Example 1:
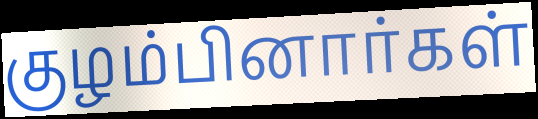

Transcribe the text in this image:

குழம்பினார்கள்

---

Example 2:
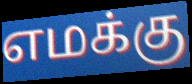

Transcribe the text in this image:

எமக்கு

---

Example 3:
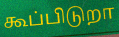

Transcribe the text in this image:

கூப்பிடுறா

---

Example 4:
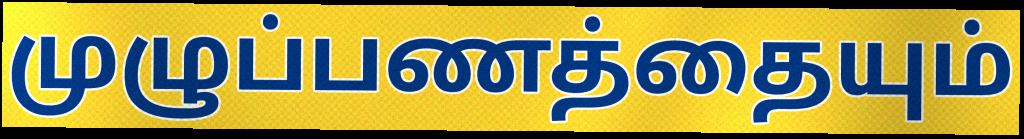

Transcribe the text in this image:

முழுப்பணத்தையும்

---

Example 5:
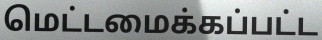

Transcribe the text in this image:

மெட்டமைக்கப்பட்ட